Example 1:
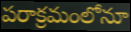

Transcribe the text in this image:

పరాక్రమంలోనూ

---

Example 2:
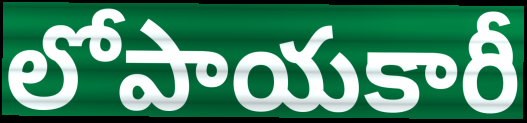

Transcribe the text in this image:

లోపాయకారీ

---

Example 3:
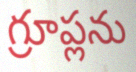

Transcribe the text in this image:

గ్రూప్లను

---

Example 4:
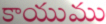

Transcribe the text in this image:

కాయుము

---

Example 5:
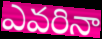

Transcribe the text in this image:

ఎవరినా